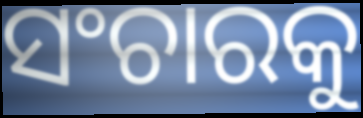
ସଂଚାରକୁ